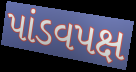
પાંડવપક્ષ